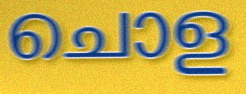
ചൊള